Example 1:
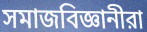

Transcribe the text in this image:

সমাজবিজ্ঞানীরা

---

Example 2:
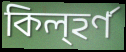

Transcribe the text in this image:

কিল্‌হর্ণ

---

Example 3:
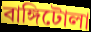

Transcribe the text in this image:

বাঙ্গিটোলা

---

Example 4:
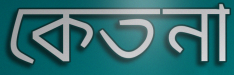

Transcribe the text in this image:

কেতনা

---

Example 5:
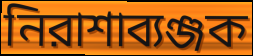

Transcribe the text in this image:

নিরাশাব্যঞ্জক